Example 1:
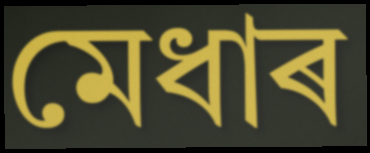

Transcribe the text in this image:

মেধাৰ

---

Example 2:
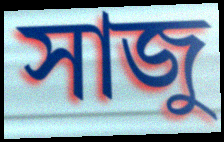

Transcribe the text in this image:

সাজু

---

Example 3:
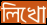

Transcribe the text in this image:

লিখো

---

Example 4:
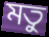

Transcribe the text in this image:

মতু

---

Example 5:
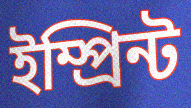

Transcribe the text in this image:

ইম্প্ৰিন্ট